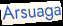
Arsuaga